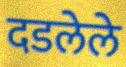
दडलेले